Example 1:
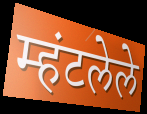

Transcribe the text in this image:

म्हंटलेले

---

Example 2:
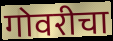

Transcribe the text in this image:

गोवरीचा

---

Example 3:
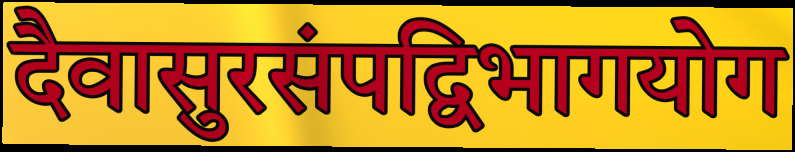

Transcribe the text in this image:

दैवासुरसंपद्विभागयोग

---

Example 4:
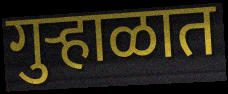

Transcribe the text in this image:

गुऱ्हाळात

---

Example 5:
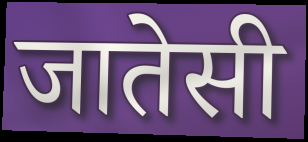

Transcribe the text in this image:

जातेसी